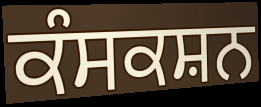
ਕੰਸਕਸ਼ਨ